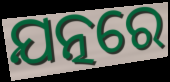
ଯତ୍ନରେ